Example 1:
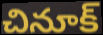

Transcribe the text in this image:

చినూక్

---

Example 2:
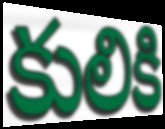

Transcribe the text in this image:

కులికి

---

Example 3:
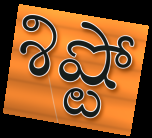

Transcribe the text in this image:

శిష్టో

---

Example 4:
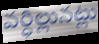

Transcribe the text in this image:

వర్ధిల్లునట్లు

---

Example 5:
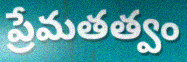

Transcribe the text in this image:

ప్రేమతత్వం